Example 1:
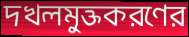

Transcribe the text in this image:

দখলমুক্তকরণের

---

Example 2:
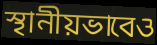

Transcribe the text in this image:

স্থানীয়ভাবেও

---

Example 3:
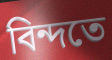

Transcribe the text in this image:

বিন্দতে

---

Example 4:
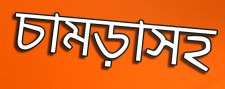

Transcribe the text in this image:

চামড়াসহ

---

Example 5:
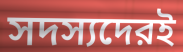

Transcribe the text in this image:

সদস্যদেরই